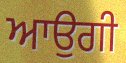
ਆਉਗੀ